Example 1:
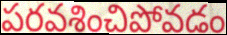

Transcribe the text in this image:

పరవశించిపోవడం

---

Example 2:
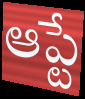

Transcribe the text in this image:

ఆప్టే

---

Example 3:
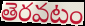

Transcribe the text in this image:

తెరవటం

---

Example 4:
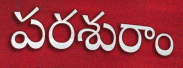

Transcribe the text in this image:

పరశురాం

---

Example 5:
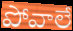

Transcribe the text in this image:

పోవాలే